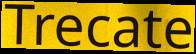
Trecate